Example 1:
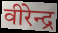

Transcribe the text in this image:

वीरेन्द्र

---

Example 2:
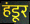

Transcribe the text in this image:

हंडूर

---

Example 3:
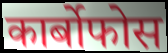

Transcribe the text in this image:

कार्बोफोस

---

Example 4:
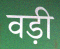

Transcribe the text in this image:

वड़ी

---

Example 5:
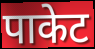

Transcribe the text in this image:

पाकेट